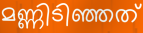
മണ്ണിടിഞ്ഞത്